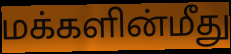
மக்களின்மீது